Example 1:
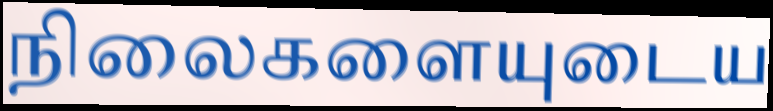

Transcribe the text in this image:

நிலைகளையுடைய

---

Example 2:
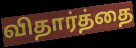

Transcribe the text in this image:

விதார்த்தை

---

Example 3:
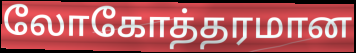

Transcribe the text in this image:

லோகோத்தரமான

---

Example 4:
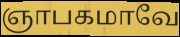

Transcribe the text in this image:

ஞாபகமாவே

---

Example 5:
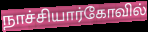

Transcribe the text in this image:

நாச்சியார்கோவில்